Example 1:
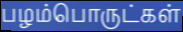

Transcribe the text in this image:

பழம்பொருட்கள்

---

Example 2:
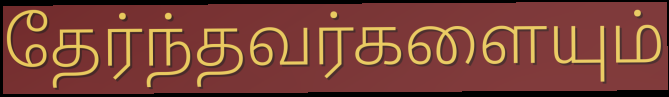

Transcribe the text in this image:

தேர்ந்தவர்களையும்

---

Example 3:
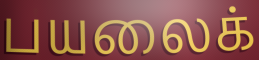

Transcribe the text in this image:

பயலைக்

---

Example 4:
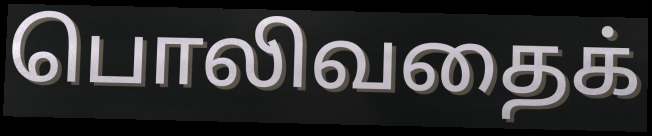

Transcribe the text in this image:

பொலிவதைக்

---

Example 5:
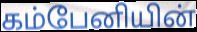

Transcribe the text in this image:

கம்பேனியின்